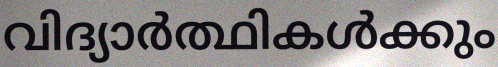
വിദ്യാർത്ഥികൾക്കും